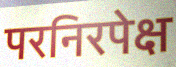
परनिरपेक्ष